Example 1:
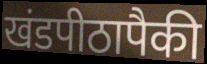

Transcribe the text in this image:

खंडपीठापैकी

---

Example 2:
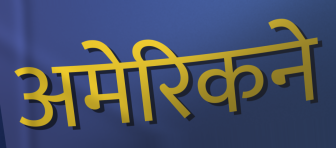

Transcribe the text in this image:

अमेरिकने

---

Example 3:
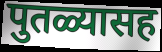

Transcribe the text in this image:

पुतळ्यासह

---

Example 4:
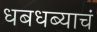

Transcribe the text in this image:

धबधब्याचं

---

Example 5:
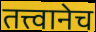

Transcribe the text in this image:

तत्त्वानेच